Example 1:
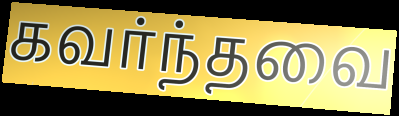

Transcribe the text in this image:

கவர்ந்தவை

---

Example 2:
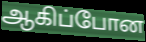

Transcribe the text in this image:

ஆகிப்போன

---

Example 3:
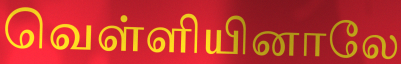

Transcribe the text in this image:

வெள்ளியினாலே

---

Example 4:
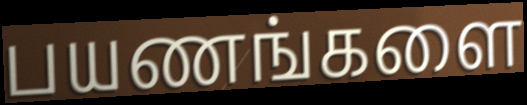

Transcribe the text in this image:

பயணங்களை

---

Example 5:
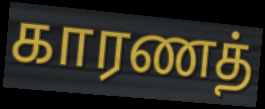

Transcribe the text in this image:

காரணத்